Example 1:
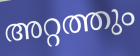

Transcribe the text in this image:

അറ്റത്തും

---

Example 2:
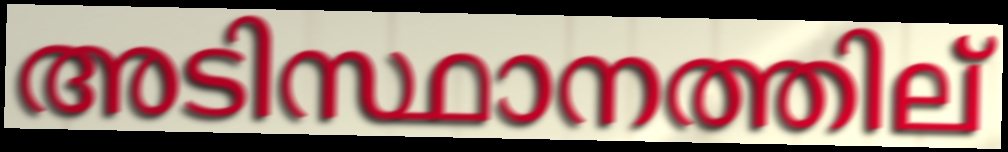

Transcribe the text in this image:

അടിസ്ഥാനത്തില്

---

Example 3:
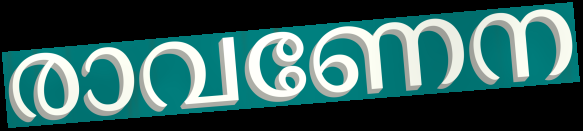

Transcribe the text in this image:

രാവണേന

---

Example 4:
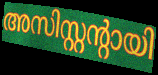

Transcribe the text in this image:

അസിസ്റ്റന്റായി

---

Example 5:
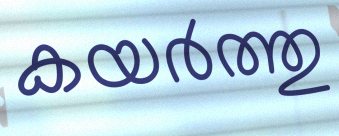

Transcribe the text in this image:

കയർത്തു